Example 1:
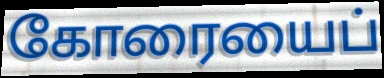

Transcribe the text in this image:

கோரையைப்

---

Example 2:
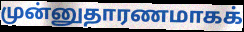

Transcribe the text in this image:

முன்னுதாரணமாகக்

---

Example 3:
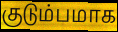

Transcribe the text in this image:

குடும்பமாக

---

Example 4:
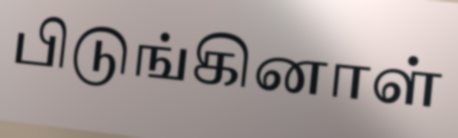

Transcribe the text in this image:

பிடுங்கினாள்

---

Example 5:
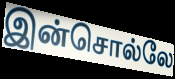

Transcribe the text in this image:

இன்சொல்லே